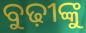
ବୁଢ଼ୀଙ୍କୁ